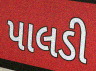
પાલડી